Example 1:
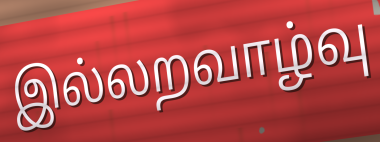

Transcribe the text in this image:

இல்லறவாழ்வு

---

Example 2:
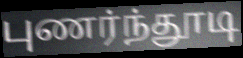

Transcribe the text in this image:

புணர்ந்தூடி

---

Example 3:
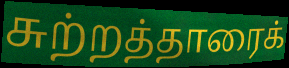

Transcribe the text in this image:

சுற்றத்தாரைக்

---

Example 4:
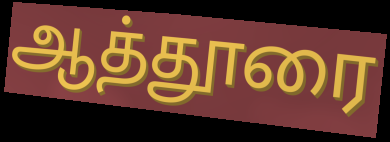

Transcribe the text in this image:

ஆத்தூரை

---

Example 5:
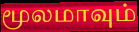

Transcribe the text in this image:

மூலமாவும்